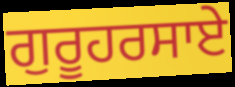
ਗੁਰੂਹਰਸਾਏ